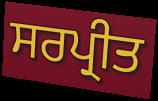
ਸਰਪ੍ਰੀਤ